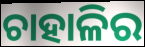
ଚାହାଳିର